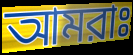
আমরাঃ